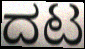
ದಟ